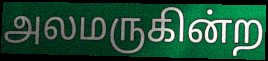
அலமருகின்ற